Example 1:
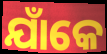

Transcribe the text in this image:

ଯାଁକେ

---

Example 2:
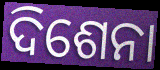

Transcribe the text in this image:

ଦିଶେନା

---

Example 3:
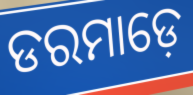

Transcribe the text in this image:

ଡରମାଡ଼େ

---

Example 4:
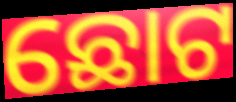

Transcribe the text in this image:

ଛୋଟ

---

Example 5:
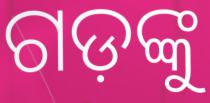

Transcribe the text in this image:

ଗଡ଼ଙ୍କୁ